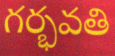
గర్భవతి